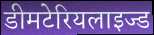
डीमटेरियलाइज्ड